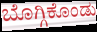
ಬೊಗ್ಗಿಕೊಂಡು